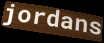
jordans